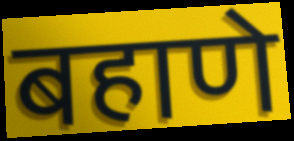
बहाणे